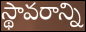
స్థావరాన్ని